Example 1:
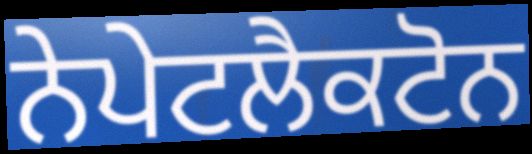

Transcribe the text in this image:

ਨੇਪੇਟਲੈਕਟੋਨ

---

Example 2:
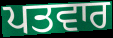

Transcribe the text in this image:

ਪਤਵਾਰ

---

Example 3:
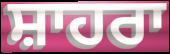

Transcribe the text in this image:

ਸ਼ਾਹਰਾ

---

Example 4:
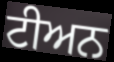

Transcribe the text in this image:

ਟੀਅਨ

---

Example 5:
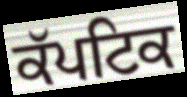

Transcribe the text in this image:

ਕੱਪਟਿਕ